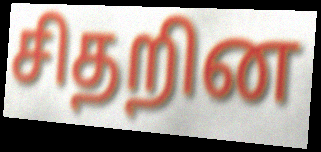
சிதறின